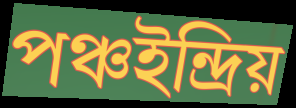
পঞ্চইন্দ্রিয়